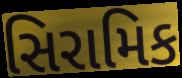
સિરામિક